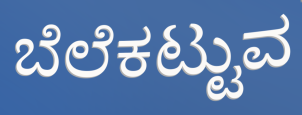
ಬೆಲೆಕಟ್ಟುವ